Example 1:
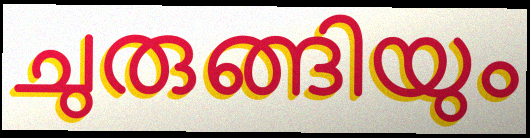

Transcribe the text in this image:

ചുരുങ്ങിയും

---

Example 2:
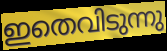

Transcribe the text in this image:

ഇതെവിടുന്നു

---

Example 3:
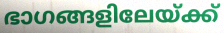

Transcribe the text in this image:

ഭാഗങ്ങളിലേയ്ക്ക്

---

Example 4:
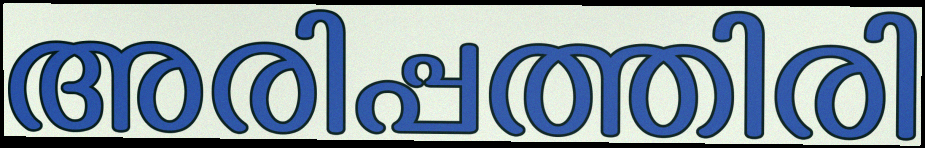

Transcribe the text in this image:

അരിപ്പത്തിരി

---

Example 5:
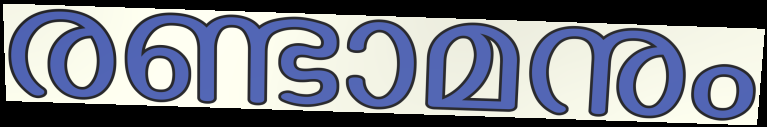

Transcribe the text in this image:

രണ്ടാമനും